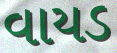
વાયડ